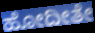
ಹೋದೀತೇ